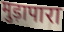
मुड़ापारा